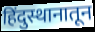
हिंदुस्थानातून